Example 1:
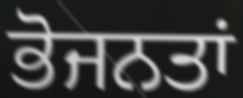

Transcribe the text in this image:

ਭੋਜਨਤਾਂ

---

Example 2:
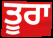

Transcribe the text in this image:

ਤੂਰਾ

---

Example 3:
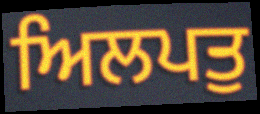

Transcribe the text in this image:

ਅਿਲਪਤੁ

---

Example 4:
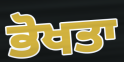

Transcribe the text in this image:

ਭੋਖਤਾ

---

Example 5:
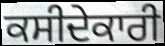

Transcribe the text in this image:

ਕਸੀਦੇਕਾਰੀ